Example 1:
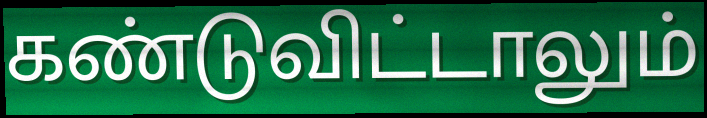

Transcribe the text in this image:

கண்டுவிட்டாலும்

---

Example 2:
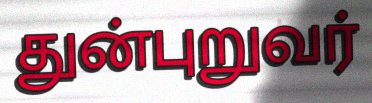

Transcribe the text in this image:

துன்புறுவர்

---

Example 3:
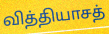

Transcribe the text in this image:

வித்தியாசத்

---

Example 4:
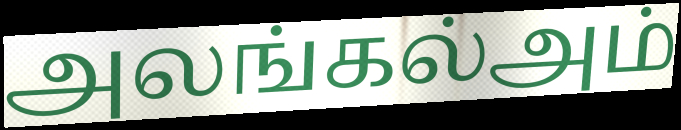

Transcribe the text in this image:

அலங்கல்அம்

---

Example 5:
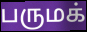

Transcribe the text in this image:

பருமக்